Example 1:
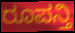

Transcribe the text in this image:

ರೂಪನ್ತಿ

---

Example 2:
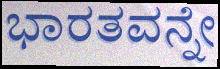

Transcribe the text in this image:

ಭಾರತವನ್ನೇ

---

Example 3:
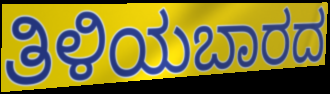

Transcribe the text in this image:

ತಿಳಿಯಬಾರದ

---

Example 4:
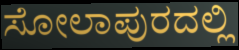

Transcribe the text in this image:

ಸೋಲಾಪುರದಲ್ಲಿ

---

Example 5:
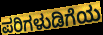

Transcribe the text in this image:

ಪರಿಗಳುಡಿಗೆಯ